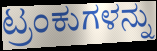
ಟ್ರಂಕುಗಳನ್ನು